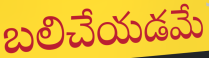
బలిచేయడమే